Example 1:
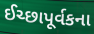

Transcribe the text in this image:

ઈચ્છાપૂર્વકના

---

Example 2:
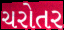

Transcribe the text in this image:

ચરોતર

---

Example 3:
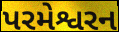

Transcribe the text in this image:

પરમેશ્વરન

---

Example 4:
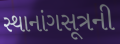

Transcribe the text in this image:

સ્થાનાંગસૂત્રની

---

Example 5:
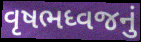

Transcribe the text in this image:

વૃષભધ્વજનું